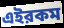
এইরকম